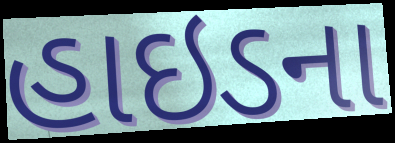
હાઇડના